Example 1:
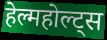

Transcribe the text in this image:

हेल्महोल्ट्स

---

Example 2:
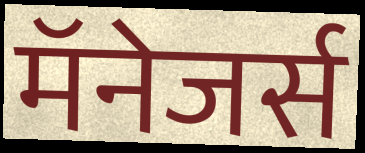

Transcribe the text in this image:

मॅनेजर्स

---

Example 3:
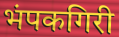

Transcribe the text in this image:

भंपकगिरी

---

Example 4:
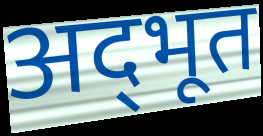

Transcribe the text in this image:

अद्भूत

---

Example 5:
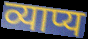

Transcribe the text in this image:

व्याप्य